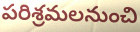
పరిశ్రమలనుంచి